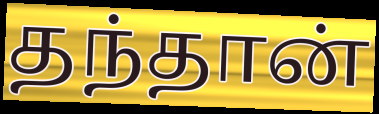
தந்தான்